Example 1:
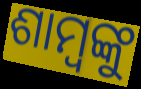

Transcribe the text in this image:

ଶାମ୍ବଙ୍କୁ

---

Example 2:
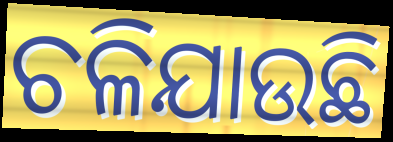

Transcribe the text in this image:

ଚଳିଯାଉଛି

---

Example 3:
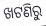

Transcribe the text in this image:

ଖଟଣିରୁ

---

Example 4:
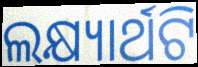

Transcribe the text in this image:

ଲକ୍ଷ୍ୟାର୍ଥଟି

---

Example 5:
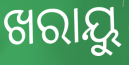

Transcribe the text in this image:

ଖରାୟୁ